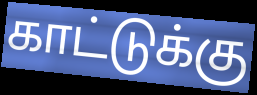
காட்டுக்கு